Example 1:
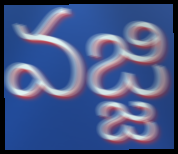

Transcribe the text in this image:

వజ్జి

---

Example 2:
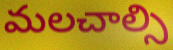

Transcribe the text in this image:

మలచాల్సి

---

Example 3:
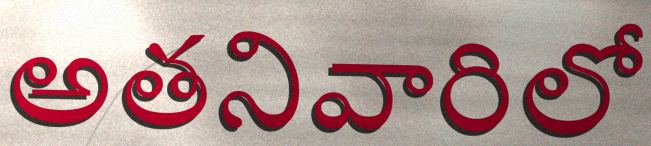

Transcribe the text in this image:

అతనివారిలో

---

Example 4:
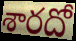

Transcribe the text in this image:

శారదో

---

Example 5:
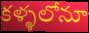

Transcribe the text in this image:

కళ్ళలోనూ